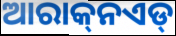
ଆରାକ୍‌ନଏଡ୍